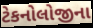
ટેકનોલોજીના